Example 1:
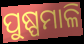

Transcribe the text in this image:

ପୁଷ୍ପମାଳି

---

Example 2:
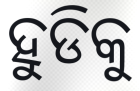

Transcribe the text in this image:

ହୁଡିକୁ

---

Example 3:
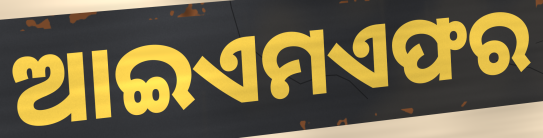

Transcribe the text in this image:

ଆଇଏମଏଫର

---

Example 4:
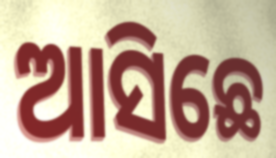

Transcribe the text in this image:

ଆସିଛେ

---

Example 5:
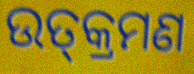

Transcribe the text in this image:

ଉତ୍‍କ୍ରମଣ